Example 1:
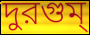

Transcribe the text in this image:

দুরগুম্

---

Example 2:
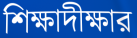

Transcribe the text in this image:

শিক্ষাদীক্ষার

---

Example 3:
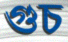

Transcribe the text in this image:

গুচ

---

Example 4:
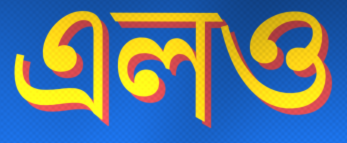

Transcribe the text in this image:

এলও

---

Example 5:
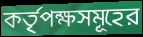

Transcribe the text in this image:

কর্তৃপক্ষসমূহের